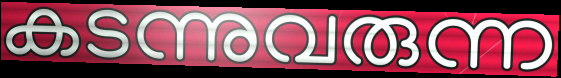
കടന്നുവരുന്ന